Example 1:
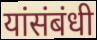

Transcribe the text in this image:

यांसंबंधी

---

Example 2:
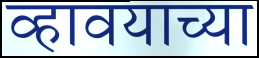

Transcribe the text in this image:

व्हावयाच्या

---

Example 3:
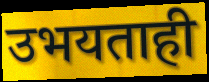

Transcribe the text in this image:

उभयताही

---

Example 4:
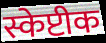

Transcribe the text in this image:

स्केप्टीक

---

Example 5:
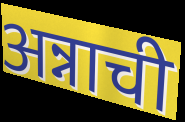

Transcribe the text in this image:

अन्नाची